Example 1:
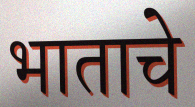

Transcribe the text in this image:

भाताचे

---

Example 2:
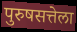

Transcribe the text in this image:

पुरुषसत्तेला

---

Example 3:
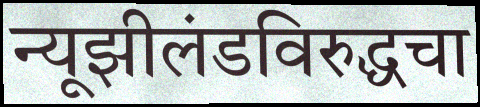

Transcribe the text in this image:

न्यूझीलंडविरुद्धचा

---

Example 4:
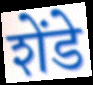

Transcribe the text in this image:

शेंडे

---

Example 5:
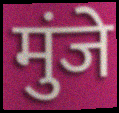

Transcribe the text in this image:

मुंजे